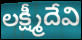
లక్ష్మీదేవి